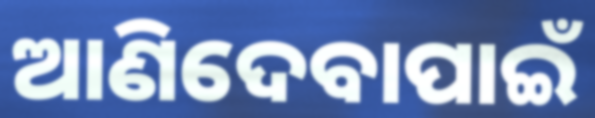
ଆଣିଦେବାପାଇଁ